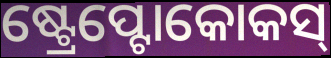
ଷ୍ଟ୍ରେପ୍ଟୋକୋକସ୍